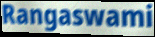
Rangaswami